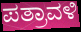
ಪತ್ರಾವಳಿ